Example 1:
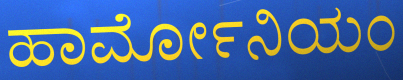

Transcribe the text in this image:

ಹಾರ್ಮೋನಿಯಂ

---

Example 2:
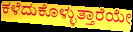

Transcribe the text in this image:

ಕಳೆದುಕೊಳ್ಳುತ್ತಾರೆಯೇ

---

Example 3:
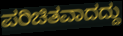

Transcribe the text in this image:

ಪರಿಚಿತವಾದದ್ದು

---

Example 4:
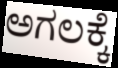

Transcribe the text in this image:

ಅಗಲಕ್ಕೆ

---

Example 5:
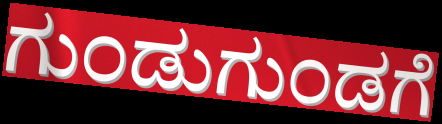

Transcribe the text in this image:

ಗುಂಡುಗುಂಡಗೆ